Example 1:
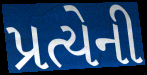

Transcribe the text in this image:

પ્રત્યેની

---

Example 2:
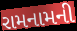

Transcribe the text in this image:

રામનામની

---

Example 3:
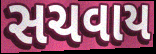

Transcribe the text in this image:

સચવાય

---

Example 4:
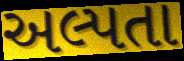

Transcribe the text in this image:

અલ્પતા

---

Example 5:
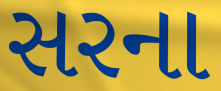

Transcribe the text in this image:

સરના